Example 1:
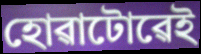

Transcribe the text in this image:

হোৱাটোৱেই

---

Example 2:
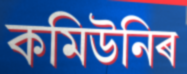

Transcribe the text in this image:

কমিউনিৰ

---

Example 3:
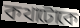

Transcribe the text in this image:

কথাটোকে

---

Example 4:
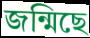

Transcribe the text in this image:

জন্মিছে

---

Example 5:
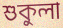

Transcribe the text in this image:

শুকুলা